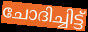
ചോദിച്ചിട്ട്